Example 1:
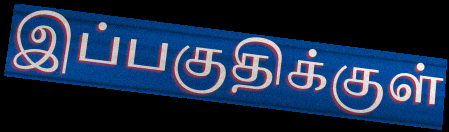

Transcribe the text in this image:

இப்பகுதிக்குள்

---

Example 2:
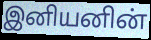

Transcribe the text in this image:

இனியனின்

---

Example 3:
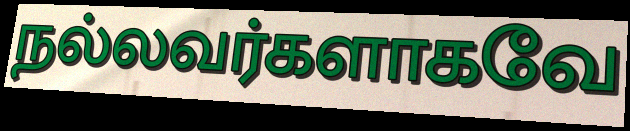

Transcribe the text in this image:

நல்லவர்களாகவே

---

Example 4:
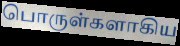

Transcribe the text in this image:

பொருள்களாகிய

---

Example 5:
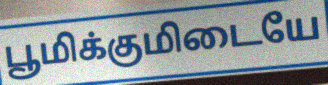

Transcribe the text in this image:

பூமிக்குமிடையே